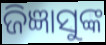
ଜିଜ୍ଞାସୁଙ୍କ